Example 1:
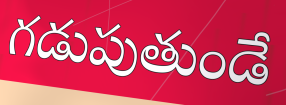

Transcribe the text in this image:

గడుపుతుండే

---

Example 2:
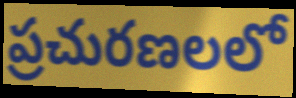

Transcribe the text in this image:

ప్రచురణలలో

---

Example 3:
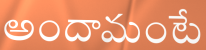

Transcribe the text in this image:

అందామంటే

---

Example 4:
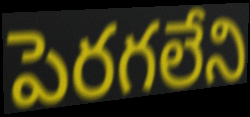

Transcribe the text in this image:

పెరగలేని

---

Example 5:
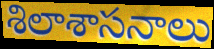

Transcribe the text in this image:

శిలాశాసనాలు